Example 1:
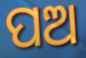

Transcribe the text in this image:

ପଅ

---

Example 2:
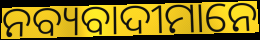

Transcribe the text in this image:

ନବ୍ୟବାଦୀମାନେ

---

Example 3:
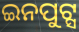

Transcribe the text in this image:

ଇନପୁଟ୍ସ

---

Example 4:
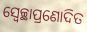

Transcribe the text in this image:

ସ୍ୱେଚ୍ଛାପ୍ରଣୋଦିତ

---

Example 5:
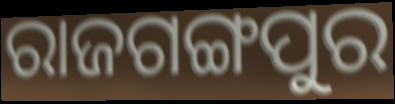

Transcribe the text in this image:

ରାଜଗଙ୍ଗପୁର